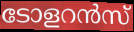
ടോളറൻസ്